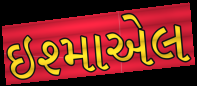
ઇશ્માએલ